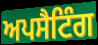
ਅਪਸੈਟਿੰਗ